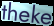
theke